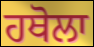
ਹਥੋਲਾ